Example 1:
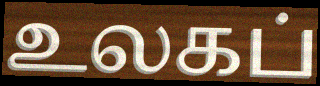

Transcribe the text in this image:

உலகப்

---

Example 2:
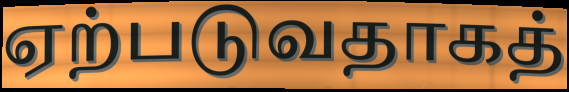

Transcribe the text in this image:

ஏற்படுவதாகத்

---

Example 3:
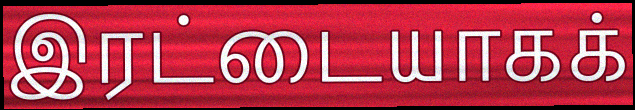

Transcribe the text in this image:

இரட்டையாகக்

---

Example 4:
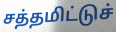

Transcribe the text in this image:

சத்தமிட்டுச்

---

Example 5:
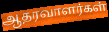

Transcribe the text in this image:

ஆதரவாளர்கள்